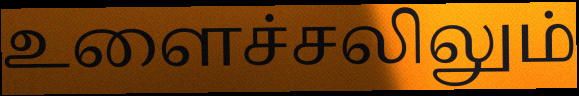
உளைச்சலிலும்